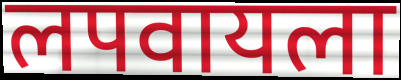
लपवायला